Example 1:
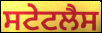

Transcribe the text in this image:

ਸਟੇਟਲੈਸ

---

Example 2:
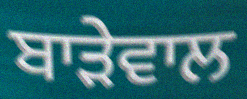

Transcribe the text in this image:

ਬਾੜੇਵਾਲ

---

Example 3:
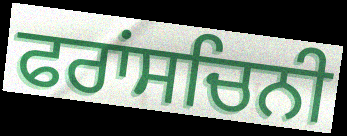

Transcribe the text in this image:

ਫਰਾਂਸਚਿਨੀ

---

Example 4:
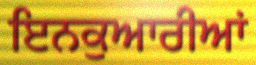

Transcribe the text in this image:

ਇਨਕੁਆਰੀਆਂ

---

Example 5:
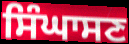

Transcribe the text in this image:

ਸਿੰਘਾਸਣ